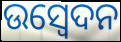
ଉସ୍ୱେଦନ